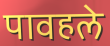
पावहले